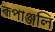
ৰূপাঞ্জলি